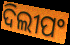
ଦିଲୀପଂ